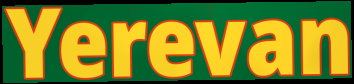
Yerevan